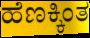
ಹೆಣಕ್ಕಿಂತ